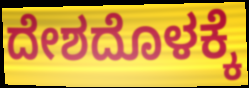
ದೇಶದೊಳಕ್ಕೆ